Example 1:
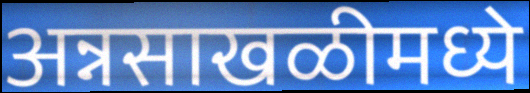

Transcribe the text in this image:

अन्नसाखळीमध्ये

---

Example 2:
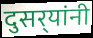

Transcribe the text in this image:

दुसर्‍यांनी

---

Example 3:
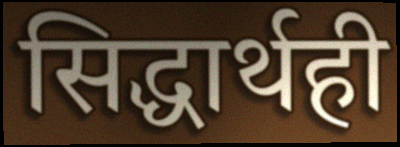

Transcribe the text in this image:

सिद्धार्थही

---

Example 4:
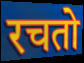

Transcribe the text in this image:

रचतो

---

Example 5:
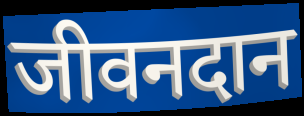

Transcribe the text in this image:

जीवनदान